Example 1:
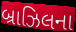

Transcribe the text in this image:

બ્રાઝિલના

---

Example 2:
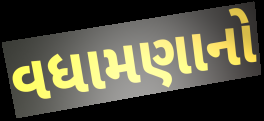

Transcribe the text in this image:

વધામણાનો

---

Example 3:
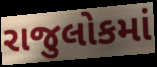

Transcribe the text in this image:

રાજુલોકમાં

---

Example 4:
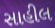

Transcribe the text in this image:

સાહીલ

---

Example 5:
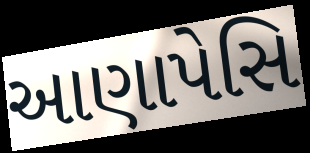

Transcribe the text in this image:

આણાપેસિ